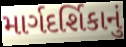
માર્ગદર્શિકાનું